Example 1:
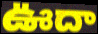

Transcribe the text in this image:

ఊదా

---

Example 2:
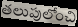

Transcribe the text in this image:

తలుపులోంచి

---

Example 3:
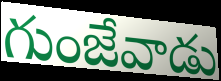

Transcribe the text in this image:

గుంజేవాడు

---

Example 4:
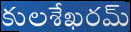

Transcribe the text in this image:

కులశేఖరమ్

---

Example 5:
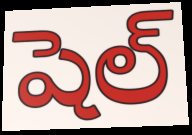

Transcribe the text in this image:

షెల్